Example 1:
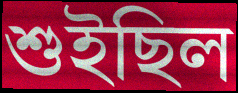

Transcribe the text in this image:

শুইছিল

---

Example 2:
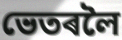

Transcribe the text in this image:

ভেতৰলৈ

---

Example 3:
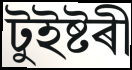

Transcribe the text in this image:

টুইষ্টৰী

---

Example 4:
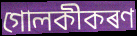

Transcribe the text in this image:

গোলকীকৰণ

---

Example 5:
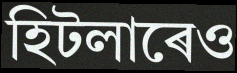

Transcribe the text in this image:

হিটলাৰেও